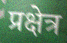
प्रक्षेत्र